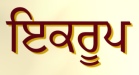
ਇਕਰੂਪ